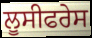
ਲੂਸੀਫਰੇਸ